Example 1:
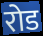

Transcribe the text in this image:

रोड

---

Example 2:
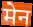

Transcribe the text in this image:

मेन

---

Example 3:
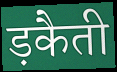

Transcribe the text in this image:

ड़कैती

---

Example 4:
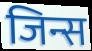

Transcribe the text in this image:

जिन्‍स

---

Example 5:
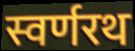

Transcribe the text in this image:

स्वर्णरथ